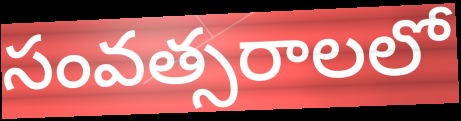
సంవత్సరాలలో